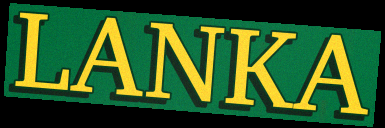
LANKA